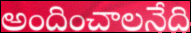
అందించాలనేది